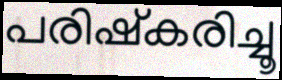
പരിഷ്കരിച്ചൂ